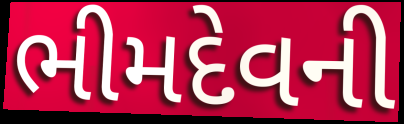
ભીમદેવની